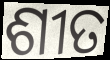
ଶୀତ